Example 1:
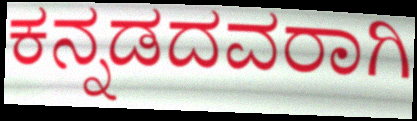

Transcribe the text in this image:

ಕನ್ನಡದವರಾಗಿ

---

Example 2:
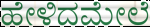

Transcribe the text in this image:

ಹೇಳಿದಮೇಲೆ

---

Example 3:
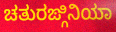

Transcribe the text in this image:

ಚತುರಙ್ಗಿನಿಯಾ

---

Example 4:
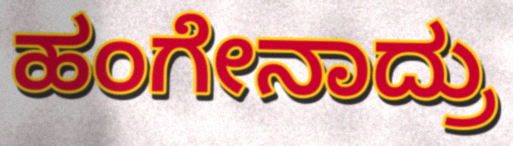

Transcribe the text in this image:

ಹಂಗೇನಾದ್ರು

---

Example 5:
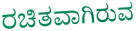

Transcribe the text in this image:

ರಚಿತವಾಗಿರುವ